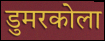
डुमरकोला